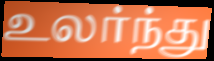
உலர்ந்து